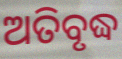
ଅତିବୃଦ୍ଧ